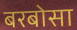
बरबोसा